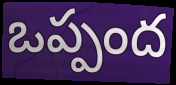
ఒప్పంద